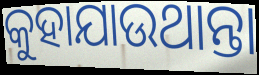
କୁହାଯାଉଥାନ୍ତା